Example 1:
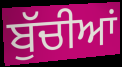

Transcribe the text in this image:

ਬੁੱਚੀਆਂ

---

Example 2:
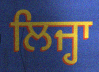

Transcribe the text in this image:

ਲਿਜ੍ਹਾ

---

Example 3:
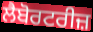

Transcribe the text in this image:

ਲੈਬੋਰਟਰੀਜ਼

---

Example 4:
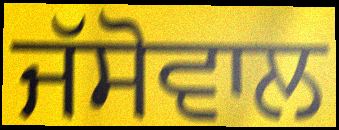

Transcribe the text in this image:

ਜੱਸੋਵਾਲ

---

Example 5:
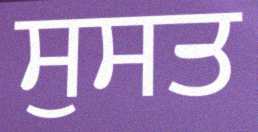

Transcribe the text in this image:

ਸੁਸਤ